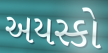
અયસ્કો